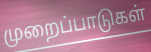
முறைப்பாடுகள்